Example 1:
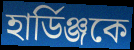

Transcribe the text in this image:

হার্ডিঞ্জকে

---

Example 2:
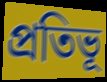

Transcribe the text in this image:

প্রতিভূ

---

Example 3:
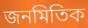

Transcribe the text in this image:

জনমিতিক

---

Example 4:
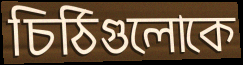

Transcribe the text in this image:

চিঠিগুলোকে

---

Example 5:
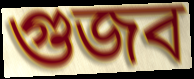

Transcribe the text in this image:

গুজব